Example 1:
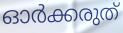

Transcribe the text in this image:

ഓർക്കരുത്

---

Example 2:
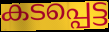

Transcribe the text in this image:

കടപ്പെട്ട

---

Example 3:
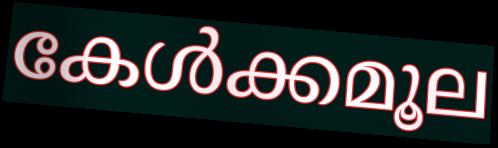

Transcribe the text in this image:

കേൾക്കമൂല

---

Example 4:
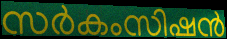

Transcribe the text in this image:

സർകംസിഷൻ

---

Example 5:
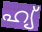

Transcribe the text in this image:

ഹ്യ്